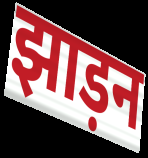
झाड़न